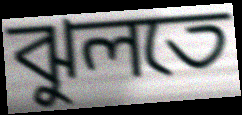
ঝুলতে